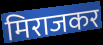
मिराजकर